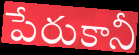
పేరుకానీ